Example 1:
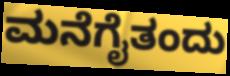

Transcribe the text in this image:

ಮನೆಗೈತಂದು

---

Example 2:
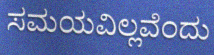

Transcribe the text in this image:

ಸಮಯವಿಲ್ಲವೆಂದು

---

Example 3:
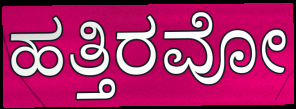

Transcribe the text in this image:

ಹತ್ತಿರವೋ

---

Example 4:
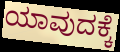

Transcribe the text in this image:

ಯಾವುದಕ್ಕೆ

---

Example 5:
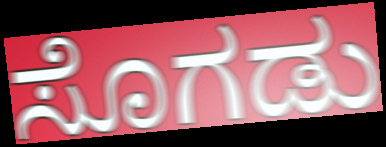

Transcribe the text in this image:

ಸೊಗಡು